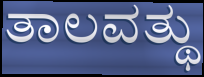
ತಾಲವತ್ಥು